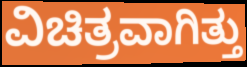
ವಿಚಿತ್ರವಾಗಿತ್ತು